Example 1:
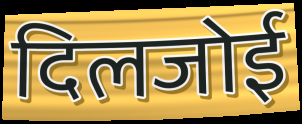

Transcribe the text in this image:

दिलजोई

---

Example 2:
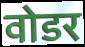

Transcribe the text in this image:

वोडर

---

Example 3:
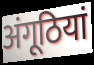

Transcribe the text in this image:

अंगूठियां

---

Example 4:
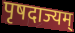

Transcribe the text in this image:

पृषदाज्यम्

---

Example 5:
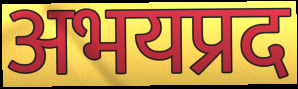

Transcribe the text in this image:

अभयप्रद